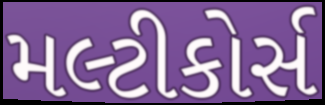
મલ્ટીકોર્સ